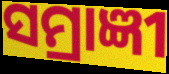
ସମ୍ରାଜ୍ଞୀ